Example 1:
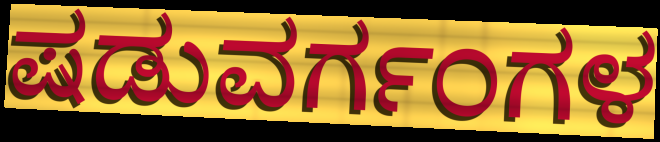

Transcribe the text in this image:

ಷಡುವರ್ಗಂಗಳ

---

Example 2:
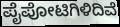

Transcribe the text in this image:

ಪೈಪೋಟಿಗಿಳಿದಿವೆ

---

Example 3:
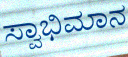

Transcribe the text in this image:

ಸ್ವಾಭಿಮಾನ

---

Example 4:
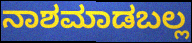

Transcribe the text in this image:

ನಾಶಮಾಡಬಲ್ಲ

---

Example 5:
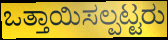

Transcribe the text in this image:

ಒತ್ತಾಯಿಸಲ್ಪಟ್ಟರು